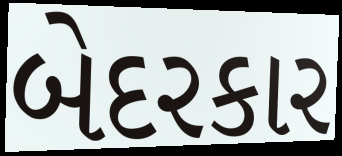
બેદરકાર